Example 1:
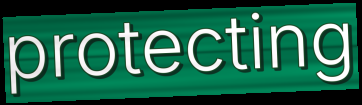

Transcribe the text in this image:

protecting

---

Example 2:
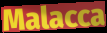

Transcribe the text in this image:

Malacca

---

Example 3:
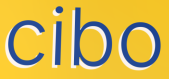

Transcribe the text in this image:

cibo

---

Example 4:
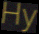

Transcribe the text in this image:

Hy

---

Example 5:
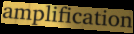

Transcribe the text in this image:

amplification